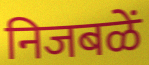
निजबळें